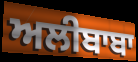
ਅਲੀਬਾਬਾ